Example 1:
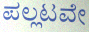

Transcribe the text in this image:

ಪಲ್ಲಟವೇ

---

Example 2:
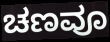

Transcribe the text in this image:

ಚಣವೂ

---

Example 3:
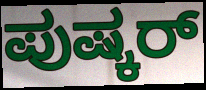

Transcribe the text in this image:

ಪುಷ್ಕರ್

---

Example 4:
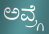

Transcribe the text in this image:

ಅವ್ರ್ಗೆ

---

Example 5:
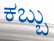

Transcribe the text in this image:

ಕಬ್ಬು